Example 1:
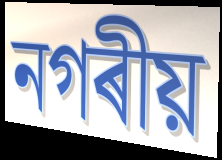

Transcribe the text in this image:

নগৰীয়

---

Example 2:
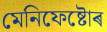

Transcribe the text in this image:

মেনিফেষ্টোৰ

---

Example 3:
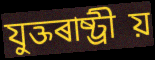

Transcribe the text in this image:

যুক্তৰাষ্ট্ৰীয়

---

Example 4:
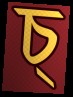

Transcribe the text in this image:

চ্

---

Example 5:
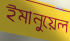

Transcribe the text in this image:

ইমানুয়েল